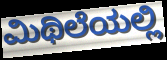
ಮಿಥಿಲೆಯಲ್ಲಿ